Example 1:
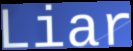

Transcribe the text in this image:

Liar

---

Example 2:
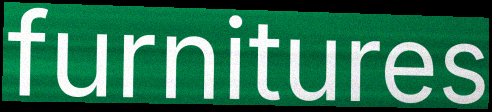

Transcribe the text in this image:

furnitures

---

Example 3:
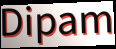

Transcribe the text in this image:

Dipam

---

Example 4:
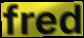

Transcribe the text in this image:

fred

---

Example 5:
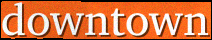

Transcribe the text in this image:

downtown